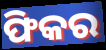
ଫିକର